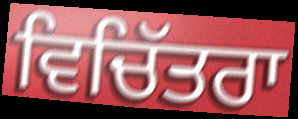
ਵਿਚਿੱਤਰਾ